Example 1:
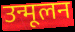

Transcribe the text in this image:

उन्मूलन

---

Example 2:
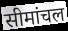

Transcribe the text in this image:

सीमांचल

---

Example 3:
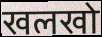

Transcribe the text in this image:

खलखो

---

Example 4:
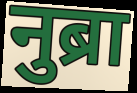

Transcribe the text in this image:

नुब्रा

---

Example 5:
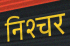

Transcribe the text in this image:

निश्चर